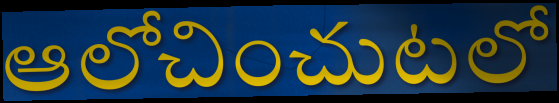
ఆలోచించుటలో